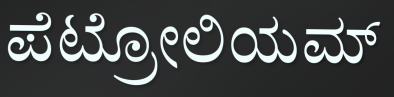
ಪೆಟ್ರೋಲಿಯಮ್